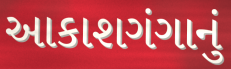
આકાશગંગાનું